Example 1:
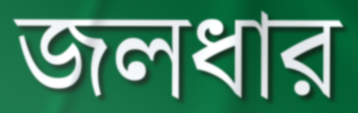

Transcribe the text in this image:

জলধার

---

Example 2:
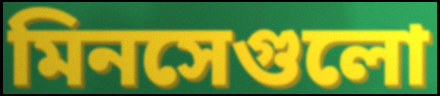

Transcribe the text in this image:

মিনসেগুলো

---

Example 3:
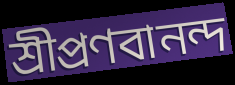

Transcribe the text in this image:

শ্রীপ্রণবানন্দ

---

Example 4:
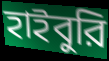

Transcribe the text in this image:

হাইবুরি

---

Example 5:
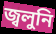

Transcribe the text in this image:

জ্বলুনি